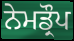
ਨੇਮਡ੍ਰੌਪ